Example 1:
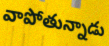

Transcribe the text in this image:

వాపోతున్నాడు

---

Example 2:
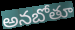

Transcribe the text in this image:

అనబోతూ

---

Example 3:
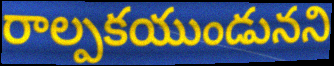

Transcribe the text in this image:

రాల్పకయుండునని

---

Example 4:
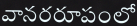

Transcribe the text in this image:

వానరరూపంలో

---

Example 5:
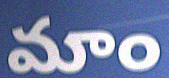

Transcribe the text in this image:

మాం